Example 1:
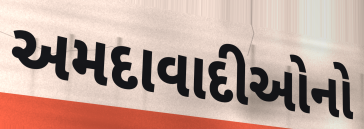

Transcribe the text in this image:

અમદાવાદીઓનો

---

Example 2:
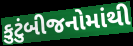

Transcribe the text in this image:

કુટુંબીજનોમાંથી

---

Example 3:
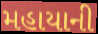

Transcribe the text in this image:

મહાયાની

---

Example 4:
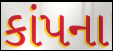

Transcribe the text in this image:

કાંપના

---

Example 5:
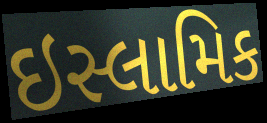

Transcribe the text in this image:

ઇસ્લામિક